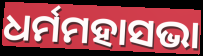
ଧର୍ମମହାସଭା